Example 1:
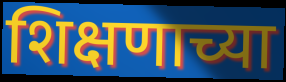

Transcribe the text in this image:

शिक्षणाच्या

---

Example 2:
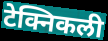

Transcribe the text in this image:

टेक्निकली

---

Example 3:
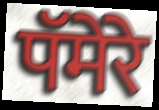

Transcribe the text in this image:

पॅमेरे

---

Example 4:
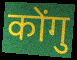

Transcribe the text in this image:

कोंगु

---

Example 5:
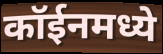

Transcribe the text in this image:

कॉईनमध्ये